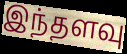
இந்தளவு